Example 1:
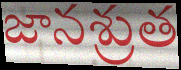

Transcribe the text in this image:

జానశ్రుత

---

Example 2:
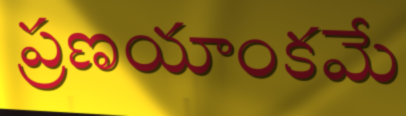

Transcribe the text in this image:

ప్రణయాంకమే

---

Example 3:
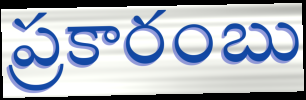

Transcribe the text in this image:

ప్రకారంబు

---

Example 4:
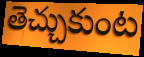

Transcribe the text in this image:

తెచ్చుకుంట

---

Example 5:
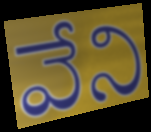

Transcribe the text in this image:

వేని